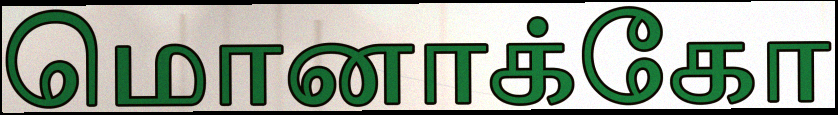
மொனாக்கோ